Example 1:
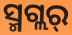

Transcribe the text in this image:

ସ୍ମଗ୍ଲର୍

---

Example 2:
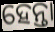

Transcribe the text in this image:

ହେନ୍ତା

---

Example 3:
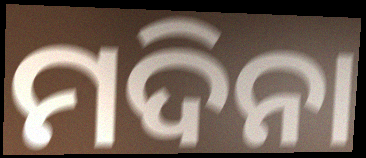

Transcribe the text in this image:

ମଦିନା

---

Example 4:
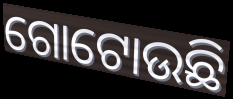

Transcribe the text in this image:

ଗୋଟୋଉଛି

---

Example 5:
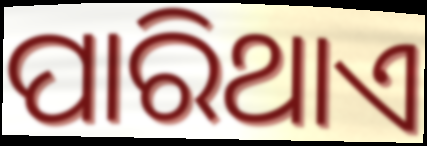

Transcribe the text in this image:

ପାରିଥାଏ